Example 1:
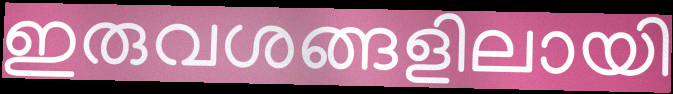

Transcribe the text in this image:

ഇരുവശങ്ങളിലായി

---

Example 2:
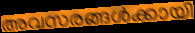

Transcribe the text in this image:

അവസരങ്ങൾക്കായി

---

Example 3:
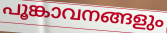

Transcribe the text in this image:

പൂങ്കാവനങ്ങളും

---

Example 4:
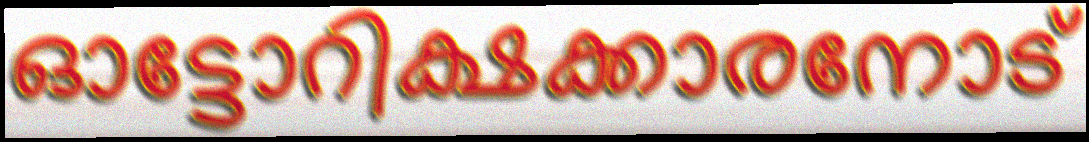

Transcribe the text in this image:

ഓട്ടോറിക്ഷക്കാരനോട്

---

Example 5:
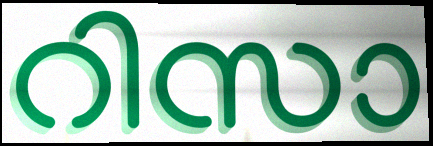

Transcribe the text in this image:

റിസാ